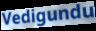
Vedigundu